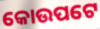
କୋଉପଟେ